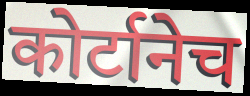
कोर्टानेच